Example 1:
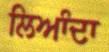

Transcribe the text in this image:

ਲਿਆੰਦਾ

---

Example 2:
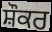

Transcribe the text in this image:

ਸ਼ੌਕਰ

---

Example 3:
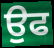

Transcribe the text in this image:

ਉਫ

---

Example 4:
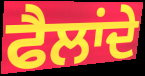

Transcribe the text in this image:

ਫੈਲਾਂਦੇ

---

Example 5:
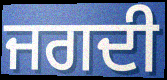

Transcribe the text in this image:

ਜਗਦੀ